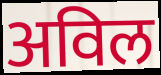
अविल